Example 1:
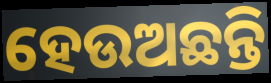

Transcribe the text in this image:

ହେଉଅଛନ୍ତି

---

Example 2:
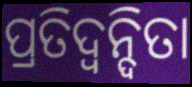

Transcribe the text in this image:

ପ୍ରତିଦ୍ୱନ୍ଦିତା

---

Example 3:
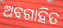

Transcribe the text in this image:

ଅବଗାହିତ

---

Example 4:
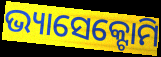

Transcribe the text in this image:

ଭ୍ୟାସେକ୍ଟୋମି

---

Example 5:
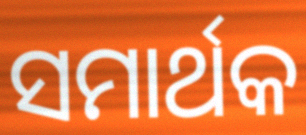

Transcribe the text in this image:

ସମାର୍ଥକ